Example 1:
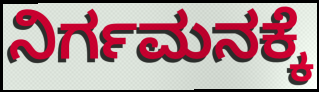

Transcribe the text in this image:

ನಿರ್ಗಮನಕ್ಕೆ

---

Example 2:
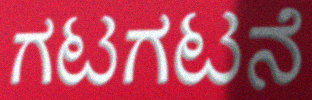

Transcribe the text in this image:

ಗಟಗಟನೆ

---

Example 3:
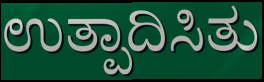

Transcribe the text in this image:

ಉತ್ಪಾದಿಸಿತು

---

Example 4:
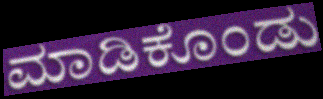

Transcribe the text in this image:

ಮಾಡಿಕೊಂಡು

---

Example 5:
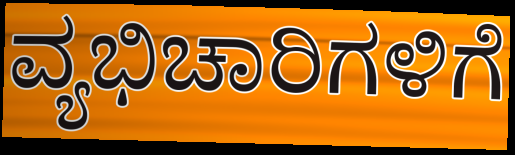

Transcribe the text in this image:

ವ್ಯಭಿಚಾರಿಗಳಿಗೆ